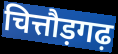
चित्तौड़गढ़